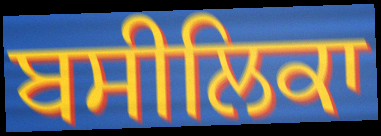
ਬਸੀਲਿਕਾ